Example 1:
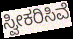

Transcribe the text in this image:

ಸ್ವೀಕರಿಸಿವೆ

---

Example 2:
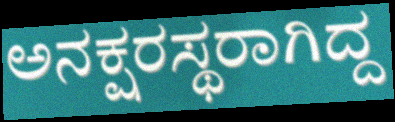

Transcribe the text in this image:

ಅನಕ್ಷರಸ್ಥರಾಗಿದ್ದ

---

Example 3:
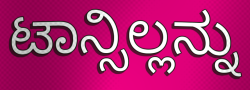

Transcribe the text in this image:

ಟಾನ್ಸಿಲ್ಲನ್ನು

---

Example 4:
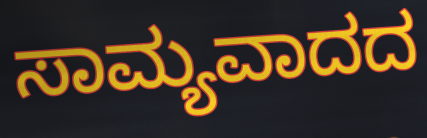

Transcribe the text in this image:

ಸಾಮ್ಯವಾದದ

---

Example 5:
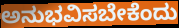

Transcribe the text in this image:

ಅನುಭವಿಸಬೇಕೆಂದು